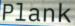
Plank